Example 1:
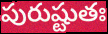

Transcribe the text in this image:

పురుష్టుతః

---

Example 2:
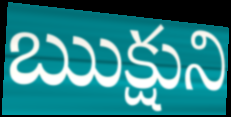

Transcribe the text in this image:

ఋక్షుని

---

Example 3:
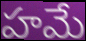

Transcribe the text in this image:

హమే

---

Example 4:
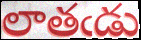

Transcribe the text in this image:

లాతఁడు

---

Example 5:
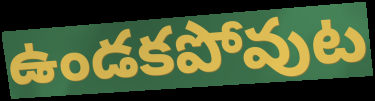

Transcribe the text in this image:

ఉండకపోవుట